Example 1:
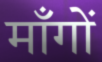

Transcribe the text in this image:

माँगों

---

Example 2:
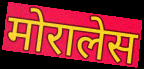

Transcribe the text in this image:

मोरालेस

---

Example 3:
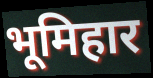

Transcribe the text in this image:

भूमिहार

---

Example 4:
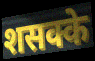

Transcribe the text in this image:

शसक्के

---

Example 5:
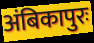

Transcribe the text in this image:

अंबिकापुरः